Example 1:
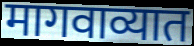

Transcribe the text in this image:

मागवाव्यात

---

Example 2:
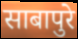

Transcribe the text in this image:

साबापुरे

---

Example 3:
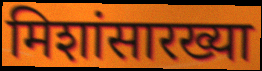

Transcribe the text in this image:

मिशांसारख्या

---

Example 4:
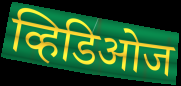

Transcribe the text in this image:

व्हिडिओज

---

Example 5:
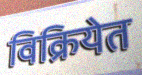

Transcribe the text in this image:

विक्रियेत